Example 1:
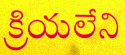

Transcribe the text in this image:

క్రియలేని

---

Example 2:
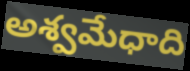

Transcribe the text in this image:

అశ్వమేధాది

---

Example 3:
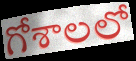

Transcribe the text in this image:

గోశాలలో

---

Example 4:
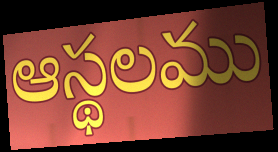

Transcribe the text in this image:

ఆస్థలము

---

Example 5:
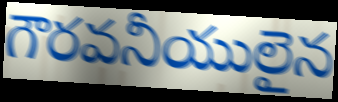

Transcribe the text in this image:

గౌరవనీయులైన